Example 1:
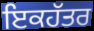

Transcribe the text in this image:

ਇਕਹੱਤਰ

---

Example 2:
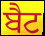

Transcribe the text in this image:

ਬੈਟ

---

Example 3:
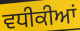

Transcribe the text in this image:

ਵਧੀਕੀਆਂ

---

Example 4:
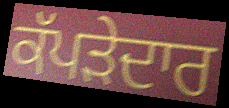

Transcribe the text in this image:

ਕੱਪੜੇਦਾਰ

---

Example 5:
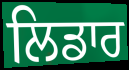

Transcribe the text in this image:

ਲਿਡਾਰ